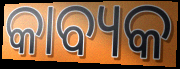
କାବ୍ୟକ